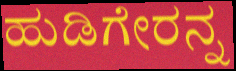
ಹುಡಿಗೇರನ್ನ